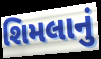
શિમલાનું